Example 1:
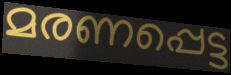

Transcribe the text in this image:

മരണപ്പെട്ട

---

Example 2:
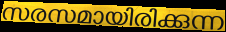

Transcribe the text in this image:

സരസമായിരിക്കുന്ന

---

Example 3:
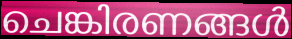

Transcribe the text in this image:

ചെങ്കിരണങ്ങൾ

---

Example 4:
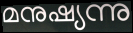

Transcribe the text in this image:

മനുഷ്യന്നു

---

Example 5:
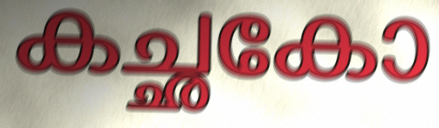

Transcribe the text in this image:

കച്ഛകോ